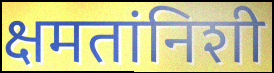
क्षमतांनिशी